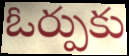
ఓర్పుకు